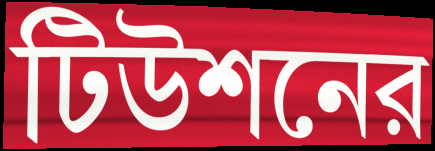
টিউশনের